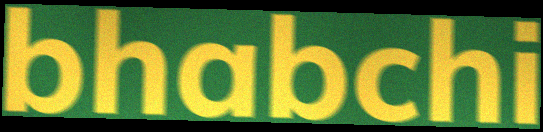
bhabchi